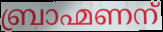
ബ്രാഹ്മണന്